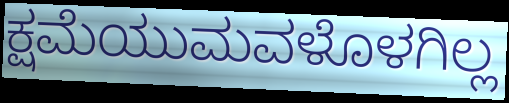
ಕ್ಷಮೆಯುಮವಳೊಳಗಿಲ್ಲ